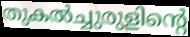
തുകൽച്ചുരുളിന്റെ